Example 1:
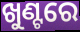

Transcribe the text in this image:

ଖୁଣ୍ଟରେ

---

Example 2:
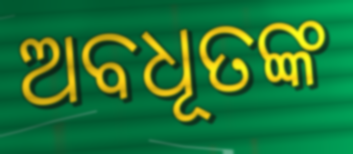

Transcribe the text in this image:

ଅବଧୂତଙ୍କ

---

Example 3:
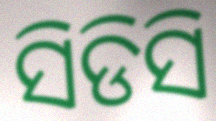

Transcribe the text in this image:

ସିଡିସି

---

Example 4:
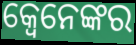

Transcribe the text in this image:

କ୍ବେନେଙ୍କର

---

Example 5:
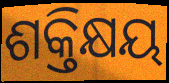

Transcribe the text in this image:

ଶକ୍ତିକ୍ଷୟ